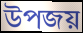
উপজয়